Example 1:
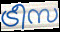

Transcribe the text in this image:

ട്രീസ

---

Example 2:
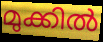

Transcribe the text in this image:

മുക്കിൽ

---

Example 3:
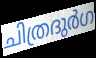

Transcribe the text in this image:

ചിത്രദുർഗ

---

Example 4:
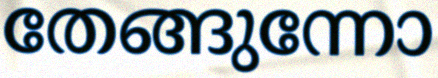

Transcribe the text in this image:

തേങ്ങുന്നോ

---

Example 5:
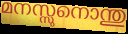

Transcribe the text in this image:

മനസ്സുനൊന്തു